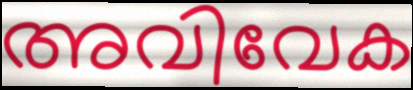
അവിവേക